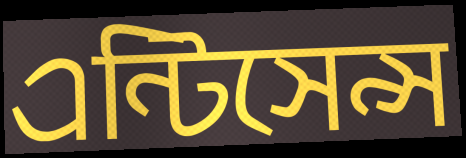
এন্টিসেন্স